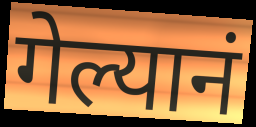
गेल्यानं